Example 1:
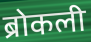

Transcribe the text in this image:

ब्रोकली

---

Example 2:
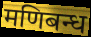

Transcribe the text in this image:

मणिबन्ध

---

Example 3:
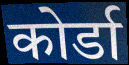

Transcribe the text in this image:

कोर्डा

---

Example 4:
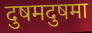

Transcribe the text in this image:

दुषमदुषमा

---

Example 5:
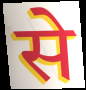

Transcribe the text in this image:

से